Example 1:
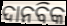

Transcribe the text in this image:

ଦାନବିକ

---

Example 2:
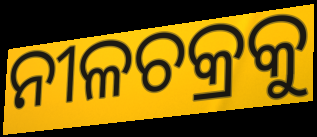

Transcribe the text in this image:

ନୀଳଚକ୍ରକୁ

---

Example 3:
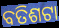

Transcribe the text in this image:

ବତିଶଟା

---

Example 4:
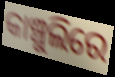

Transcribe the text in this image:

କାଞ୍ଚୁଲିରେ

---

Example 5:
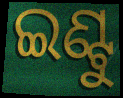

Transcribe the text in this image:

ଇଣ୍ଟୁ